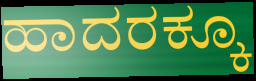
ಹಾದರಕ್ಕೂ